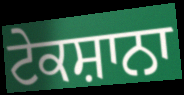
ਟੇਕਸ਼ਾਨਾ